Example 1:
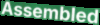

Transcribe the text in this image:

Assembled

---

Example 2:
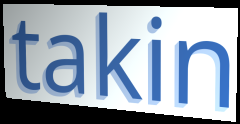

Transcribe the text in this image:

takin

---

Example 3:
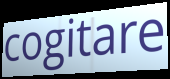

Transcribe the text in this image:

cogitare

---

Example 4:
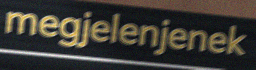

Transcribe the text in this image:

megjelenjenek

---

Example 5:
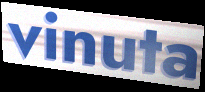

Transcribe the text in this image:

vinuta